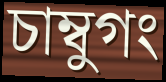
চাম্বুগং